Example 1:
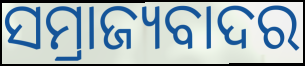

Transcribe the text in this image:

ସମ୍ରାଜ୍ୟବାଦର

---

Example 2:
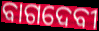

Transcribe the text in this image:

ବାଗଦେବୀ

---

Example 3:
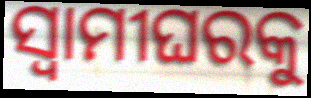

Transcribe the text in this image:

ସ୍ୱାମୀଘରକୁ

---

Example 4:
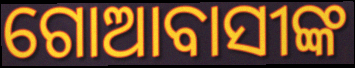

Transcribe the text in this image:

ଗୋଆବାସୀଙ୍କ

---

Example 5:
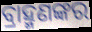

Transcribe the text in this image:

ବ୍ରାହ୍ମଣଙ୍କର